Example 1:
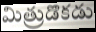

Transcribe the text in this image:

మిత్రుడొకడు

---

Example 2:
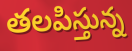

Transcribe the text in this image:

తలపిస్తున్న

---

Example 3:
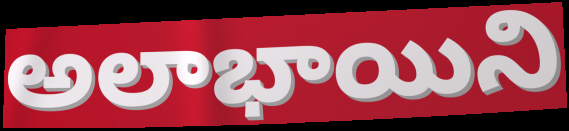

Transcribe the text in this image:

అలాభాయిని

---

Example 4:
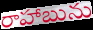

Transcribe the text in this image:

రాహాబును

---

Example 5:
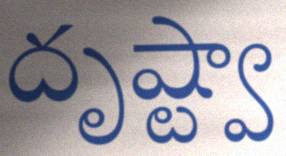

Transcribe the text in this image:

దృష్ట్వా